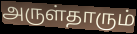
அருள்தாரும்